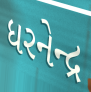
ધરનેન્દ્ર